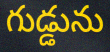
గుడ్డును